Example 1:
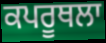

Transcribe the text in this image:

ਕਪਰੂਥਲਾ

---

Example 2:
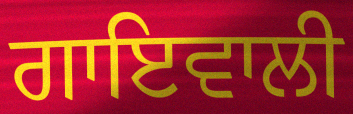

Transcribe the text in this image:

ਗਾਇਵਾਲੀ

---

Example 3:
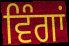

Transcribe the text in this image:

ਵਿੰਗਾਂ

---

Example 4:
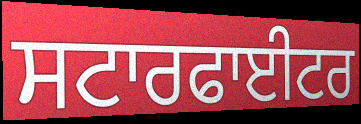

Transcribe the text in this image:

ਸਟਾਰਫਾਈਟਰ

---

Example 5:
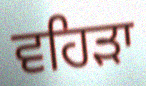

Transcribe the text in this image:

ਵਹਿੜਾ